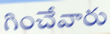
గించేవారు